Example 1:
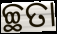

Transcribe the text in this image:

ଚ୍ଛତା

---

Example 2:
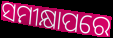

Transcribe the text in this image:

ସମୀକ୍ଷାପରେ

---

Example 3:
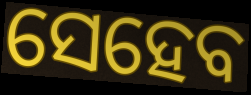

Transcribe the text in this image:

ସେହେବ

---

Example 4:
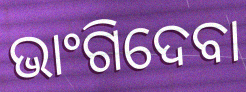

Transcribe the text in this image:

ଭାଂଗିଦେବା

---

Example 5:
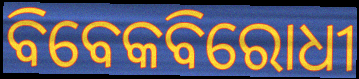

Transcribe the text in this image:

ବିବେକବିରୋଧୀ